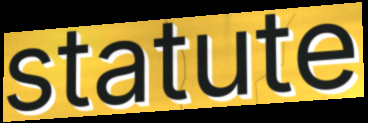
statute